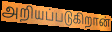
அறியப்படுகிறான்